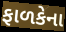
ફાળકેના